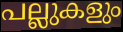
പല്ലുകളും